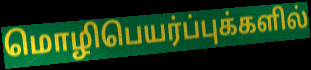
மொழிபெயர்ப்புக்களில்